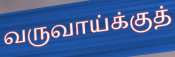
வருவாய்க்குத்